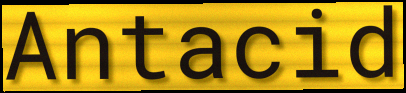
Antacid